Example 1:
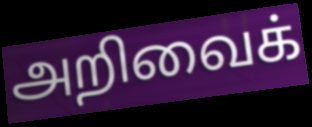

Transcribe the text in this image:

அறிவைக்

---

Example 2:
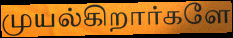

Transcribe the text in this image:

முயல்கிறார்களே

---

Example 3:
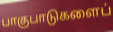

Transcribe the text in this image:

பாகுபாடுகளைப்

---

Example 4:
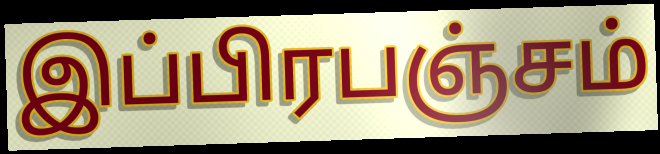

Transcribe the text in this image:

இப்பிரபஞ்சம்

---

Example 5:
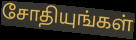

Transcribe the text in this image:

சோதியுங்கள்